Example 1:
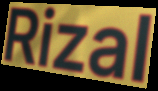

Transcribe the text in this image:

Rizal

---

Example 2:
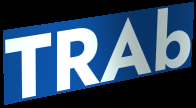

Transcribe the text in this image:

TRAb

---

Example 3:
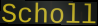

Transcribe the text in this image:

Scholl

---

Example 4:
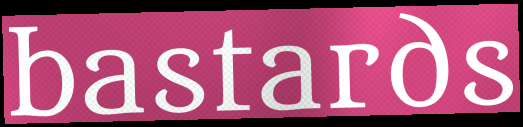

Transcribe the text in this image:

bastards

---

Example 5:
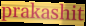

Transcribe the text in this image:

prakashit